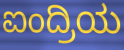
ಐಂದ್ರಿಯ